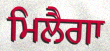
ਮਿਲੈਗਾ